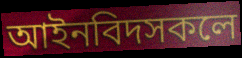
আইনবিদসকলে